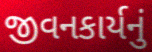
જીવનકાર્યનું